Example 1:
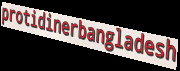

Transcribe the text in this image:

protidinerbangladesh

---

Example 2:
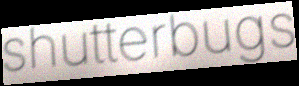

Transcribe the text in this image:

shutterbugs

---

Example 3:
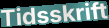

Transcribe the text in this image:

Tidsskrift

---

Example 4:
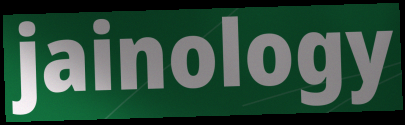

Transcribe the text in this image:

jainology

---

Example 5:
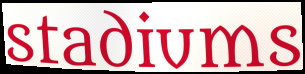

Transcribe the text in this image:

stadiums